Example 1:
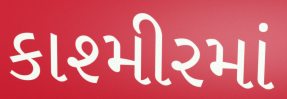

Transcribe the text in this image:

કાશ્મીરમાં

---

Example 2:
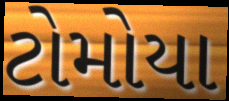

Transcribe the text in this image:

ટોમોયા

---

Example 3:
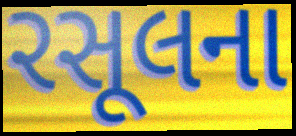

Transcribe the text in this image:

રસૂલના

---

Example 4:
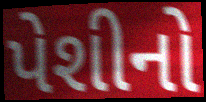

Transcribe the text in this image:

પેશીનો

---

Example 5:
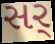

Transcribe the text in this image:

સર્